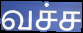
வச்ச